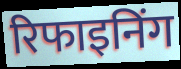
रिफाइनिंग